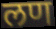
लण